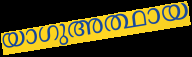
യാഗുഅത്ഥായ